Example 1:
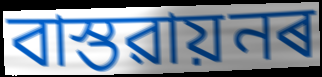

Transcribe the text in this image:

বাস্তৱায়নৰ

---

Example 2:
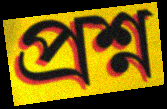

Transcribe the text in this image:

প্ৰশ্ন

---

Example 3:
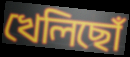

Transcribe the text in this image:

খেলিছোঁ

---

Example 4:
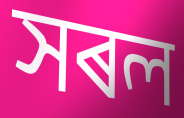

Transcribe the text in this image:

সৰল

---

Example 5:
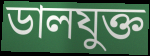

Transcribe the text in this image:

ডালযুক্ত